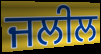
ਜਲੀਲ